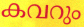
കവറും